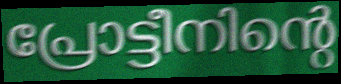
പ്രോട്ടീനിന്റെ